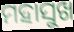
ମହାସୁଖ